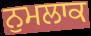
ਨੁਮਲਾਕ